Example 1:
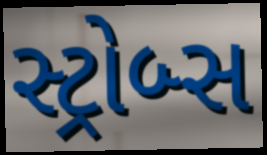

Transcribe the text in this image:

સ્ટ્રોબ્સ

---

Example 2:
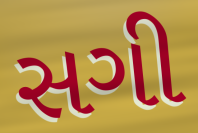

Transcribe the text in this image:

સગી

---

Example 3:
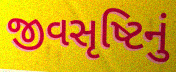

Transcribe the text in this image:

જીવસૃષ્ટિનું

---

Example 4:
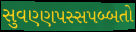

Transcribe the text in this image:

સુવણ્ણપસ્સપબ્બતો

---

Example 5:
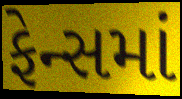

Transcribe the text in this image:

ફેન્સમાં